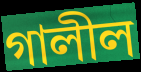
গালীল